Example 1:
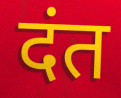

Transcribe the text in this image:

दंत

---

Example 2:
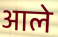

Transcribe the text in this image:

आले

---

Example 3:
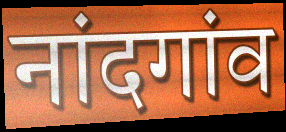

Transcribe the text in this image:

नांदगांव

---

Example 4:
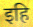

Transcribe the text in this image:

इहि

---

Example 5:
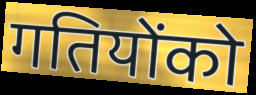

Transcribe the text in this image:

गतियोंको